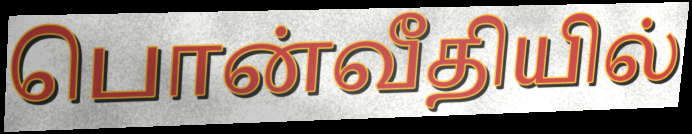
பொன்வீதியில்